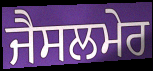
ਜੈਸਲਮੇਰ